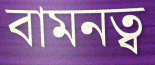
বামনত্ব